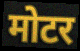
मोटर